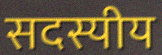
सदस्‍यीय